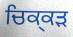
ਚਿਕ੍ਕੜ